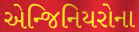
એન્જિનિયરોના